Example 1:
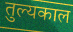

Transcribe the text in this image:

तुल्यकाल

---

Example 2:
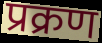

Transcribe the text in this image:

प्रक्रण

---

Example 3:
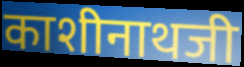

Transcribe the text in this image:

काशीनाथजी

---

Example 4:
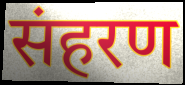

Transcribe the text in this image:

संहरण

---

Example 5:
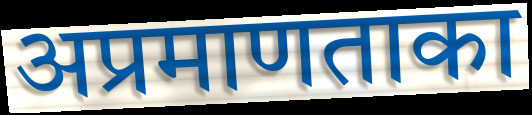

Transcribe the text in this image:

अप्रमाणताका